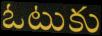
ఓటుకు